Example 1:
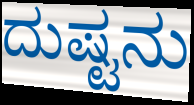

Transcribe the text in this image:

ದುಷ್ಟನು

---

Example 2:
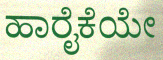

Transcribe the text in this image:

ಹಾರೈಕೆಯೇ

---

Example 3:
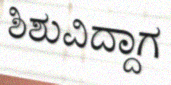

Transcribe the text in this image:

ಶಿಶುವಿದ್ದಾಗ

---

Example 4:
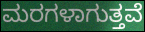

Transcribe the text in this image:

ಮರಗಳಾಗುತ್ತವೆ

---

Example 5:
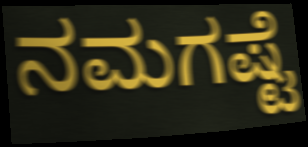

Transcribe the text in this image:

ನಮಗಷ್ಟೆ